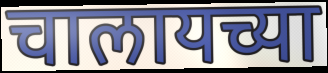
चालायच्या